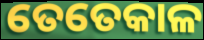
ତେତେକାଳ